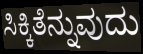
ಸಿಕ್ಕಿತೆನ್ನುವುದು